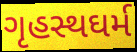
ગૃહસ્થઘર્મ